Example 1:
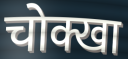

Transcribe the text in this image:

चोक्खा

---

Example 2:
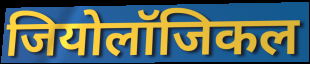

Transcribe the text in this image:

जियोलॉजिकल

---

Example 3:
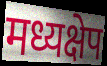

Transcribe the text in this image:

मध्यक्षेप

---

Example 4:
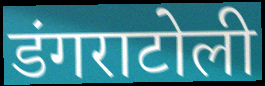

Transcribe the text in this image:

डंगराटोली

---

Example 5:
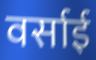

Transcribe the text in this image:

वर्साई